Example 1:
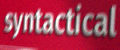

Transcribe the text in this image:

syntactical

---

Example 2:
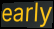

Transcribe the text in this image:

early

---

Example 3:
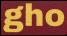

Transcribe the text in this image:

gho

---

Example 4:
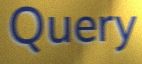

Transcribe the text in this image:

Query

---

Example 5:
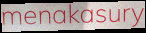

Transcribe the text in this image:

menakasury